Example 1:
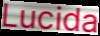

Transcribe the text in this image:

Lucida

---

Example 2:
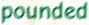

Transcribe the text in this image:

pounded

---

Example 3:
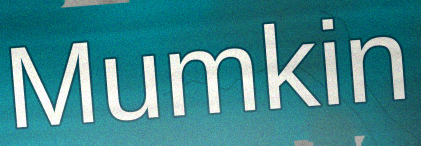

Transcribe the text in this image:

Mumkin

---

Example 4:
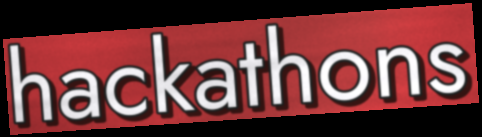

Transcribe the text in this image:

hackathons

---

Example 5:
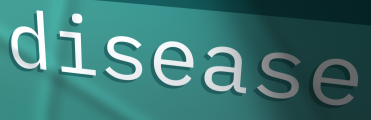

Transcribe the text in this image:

disease